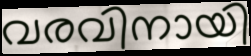
വരവിനായി